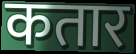
कतार